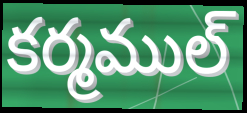
కర్మముల్